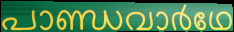
പാണ്ഡവാർഥേ